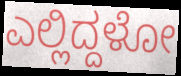
ಎಲ್ಲಿದ್ದಳೋ